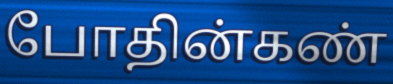
போதின்கண்